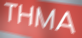
THMA